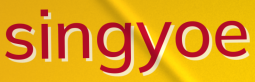
singyoe